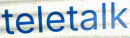
teletalk